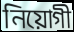
নিয়োগী